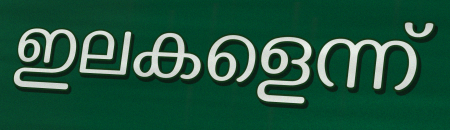
ഇലകളെന്ന്